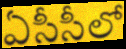
ఏసీసీలో